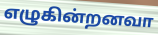
எழுகின்றனவா